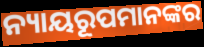
ନ୍ୟାୟରୂପମାନଙ୍କର